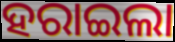
ହରାଇଲା